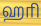
ஹரி